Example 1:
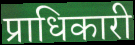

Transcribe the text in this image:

प्राधिकारी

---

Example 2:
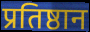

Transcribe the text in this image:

प्रतिष्ठान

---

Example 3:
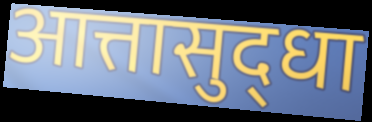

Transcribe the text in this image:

आत्तासुद्धा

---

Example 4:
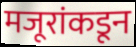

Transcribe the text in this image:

मजूरांकडून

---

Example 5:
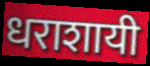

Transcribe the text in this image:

धराशायी